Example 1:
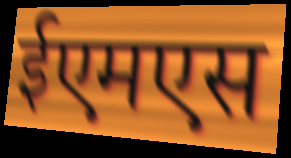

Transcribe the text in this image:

ईएमएस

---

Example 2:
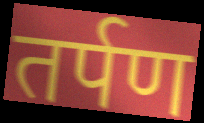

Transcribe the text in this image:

तर्पण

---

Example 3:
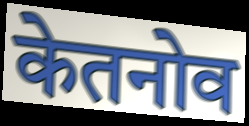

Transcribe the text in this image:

केतनोव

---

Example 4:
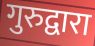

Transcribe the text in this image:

गुरुद्वारा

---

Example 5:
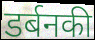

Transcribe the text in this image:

डर्बनकी